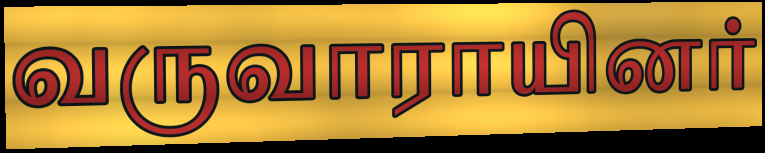
வருவாராயினர்